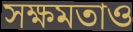
সক্ষমতাও